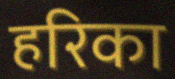
हरिका